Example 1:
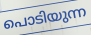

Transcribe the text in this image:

പൊടിയുന്ന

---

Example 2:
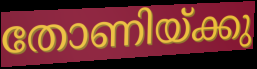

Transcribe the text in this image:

തോണിയ്ക്കു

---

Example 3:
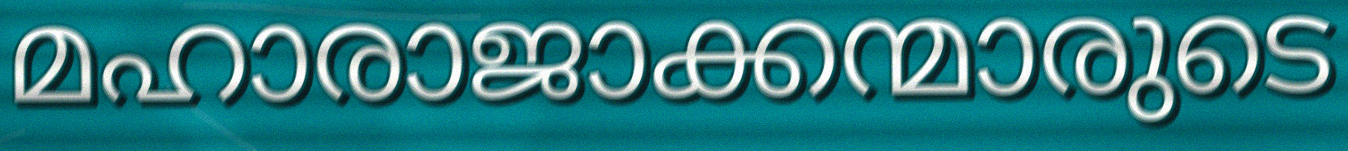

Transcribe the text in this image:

മഹാരാജാക്കന്മാരുടെ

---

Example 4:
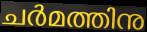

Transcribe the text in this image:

ചർമത്തിനു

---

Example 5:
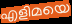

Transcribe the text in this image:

എളിമയെ